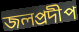
জলপ্রদীপ